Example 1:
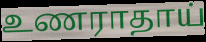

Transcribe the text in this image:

உணராதாய்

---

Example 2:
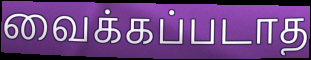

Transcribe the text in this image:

வைக்கப்படாத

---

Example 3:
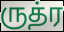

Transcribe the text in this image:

ருத்ர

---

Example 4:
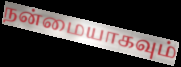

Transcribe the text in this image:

நன்மையாகவும்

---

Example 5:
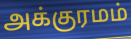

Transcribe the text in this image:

அக்குரமம்